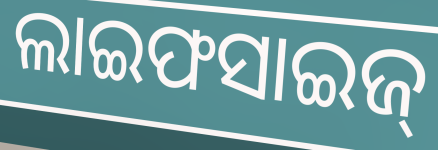
ଲାଇଫସାଇଜ୍